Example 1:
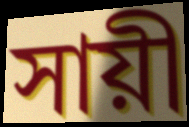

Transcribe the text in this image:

সায়ী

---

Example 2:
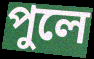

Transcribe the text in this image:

পুলে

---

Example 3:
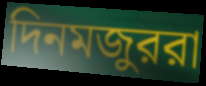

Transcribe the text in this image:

দিনমজুররা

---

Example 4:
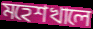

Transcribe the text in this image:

মহেশখালে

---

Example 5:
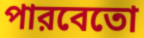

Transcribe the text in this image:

পারবেতো